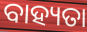
ବାହ୍ୟତା